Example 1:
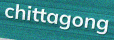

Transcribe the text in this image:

chittagong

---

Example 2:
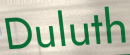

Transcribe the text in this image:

Duluth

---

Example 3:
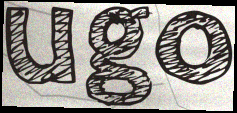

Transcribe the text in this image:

ugo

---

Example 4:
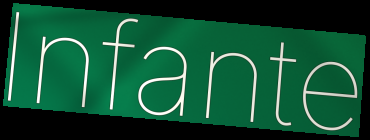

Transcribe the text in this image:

Infante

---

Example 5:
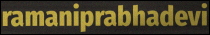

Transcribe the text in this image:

ramaniprabhadevi